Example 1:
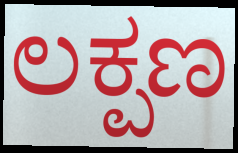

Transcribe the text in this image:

ಲಕ್ಪಣ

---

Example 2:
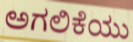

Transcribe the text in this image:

ಅಗಲಿಕೆಯು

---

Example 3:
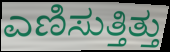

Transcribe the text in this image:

ಎಣಿಸುತ್ತಿತ್ತು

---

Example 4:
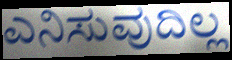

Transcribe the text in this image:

ಎನಿಸುವುದಿಲ್ಲ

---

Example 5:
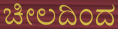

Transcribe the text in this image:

ಚೀಲದಿಂದ